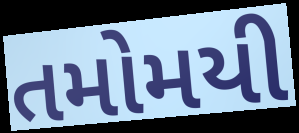
તમોમયી